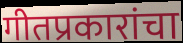
गीतप्रकारांचा